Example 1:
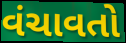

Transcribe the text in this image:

વંચાવતો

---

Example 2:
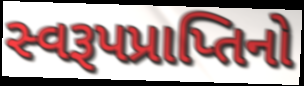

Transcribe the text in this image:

સ્વરૂપપ્રાપ્તિનો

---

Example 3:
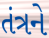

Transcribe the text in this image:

તંત્રને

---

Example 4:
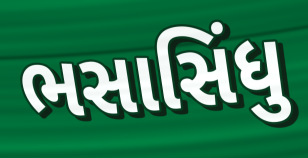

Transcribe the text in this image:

ભસાસિંધુ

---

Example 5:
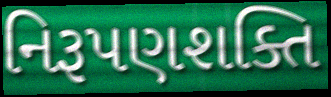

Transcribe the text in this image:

નિરૂપણશક્તિ